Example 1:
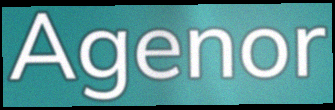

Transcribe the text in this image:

Agenor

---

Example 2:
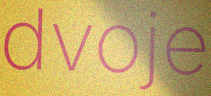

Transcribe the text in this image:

dvoje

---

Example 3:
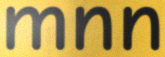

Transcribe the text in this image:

mnn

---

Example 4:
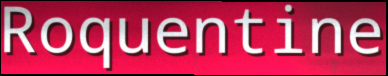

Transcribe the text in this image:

Roquentine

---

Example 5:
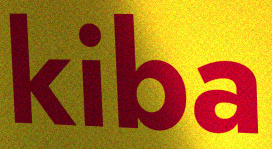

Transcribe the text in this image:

kiba